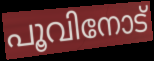
പൂവിനോട്